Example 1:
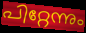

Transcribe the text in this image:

പിറ്റേന്നും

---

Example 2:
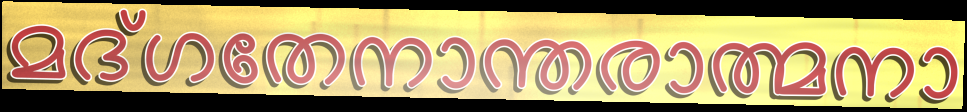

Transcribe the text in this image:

മദ്ഗതേനാന്തരാത്മനാ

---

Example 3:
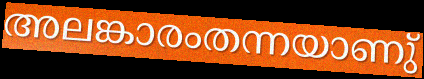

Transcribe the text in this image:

അലങ്കാരംതന്നയാണു്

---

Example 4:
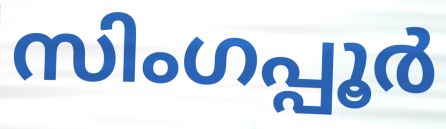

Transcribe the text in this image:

സിംഗപ്പൂർ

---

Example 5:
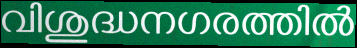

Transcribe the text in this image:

വിശുദ്ധനഗരത്തിൽ